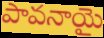
పావనాయై